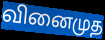
வினைமுத